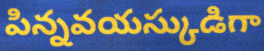
పిన్నవయస్కుడిగా